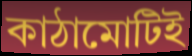
কাঠামোটিই